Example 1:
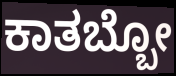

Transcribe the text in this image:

ಕಾತಬ್ಬೋ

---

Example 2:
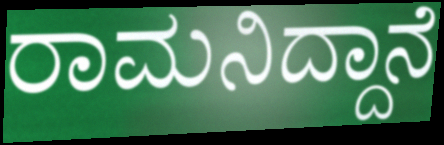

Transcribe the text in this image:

ರಾಮನಿದ್ದಾನೆ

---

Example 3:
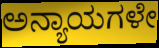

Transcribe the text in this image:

ಅನ್ಯಾಯಗಳೇ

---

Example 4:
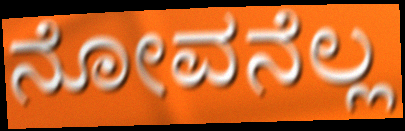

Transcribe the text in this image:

ನೋವನೆಲ್ಲ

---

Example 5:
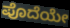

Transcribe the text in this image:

ಪೊದೆಯೇ